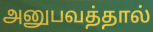
அனுபவத்தால்